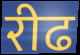
रीढ